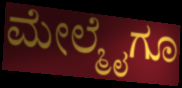
ಮೇಲ್ಮೈಗೂ